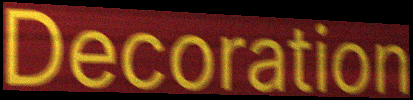
Decoration